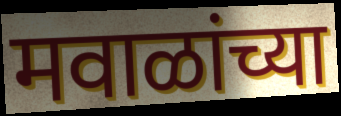
मवाळांच्या